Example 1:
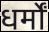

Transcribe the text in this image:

धर्मों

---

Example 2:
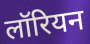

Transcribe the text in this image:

लॉरियन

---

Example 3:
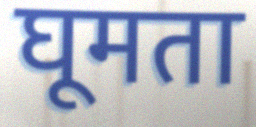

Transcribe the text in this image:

घूमता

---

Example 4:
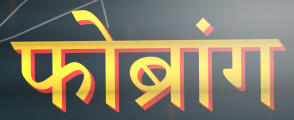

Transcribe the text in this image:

फोब्रांग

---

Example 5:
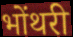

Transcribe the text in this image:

भोंथरी